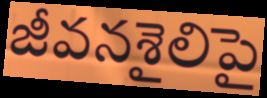
జీవనశైలిపై